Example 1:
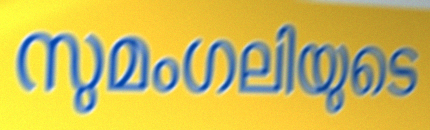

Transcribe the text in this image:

സുമംഗലിയുടെ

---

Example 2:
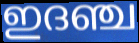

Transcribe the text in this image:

ഇദഞ്ച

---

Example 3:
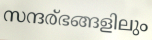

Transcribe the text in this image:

സന്ദര്ഭങ്ങളിലും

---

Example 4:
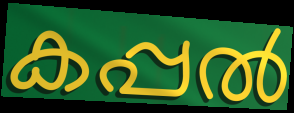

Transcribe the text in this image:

കപ്പൽ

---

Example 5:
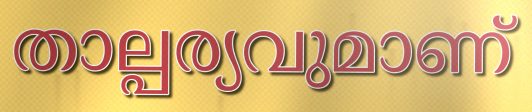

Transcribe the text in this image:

താല്പര്യവുമാണ്